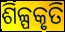
ଶିଳ୍ପକୃତି